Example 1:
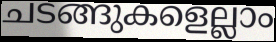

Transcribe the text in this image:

ചടങ്ങുകളെല്ലാം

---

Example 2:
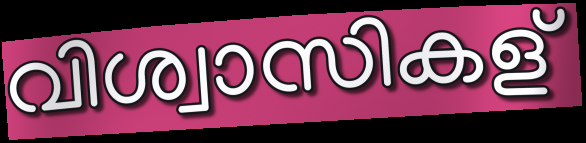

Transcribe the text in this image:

വിശ്വാസികള്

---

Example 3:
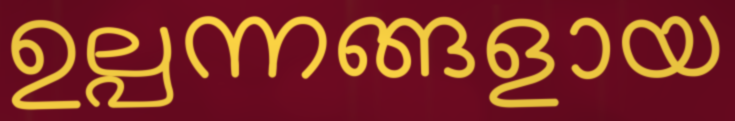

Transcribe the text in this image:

ഉല്പന്നങ്ങളായ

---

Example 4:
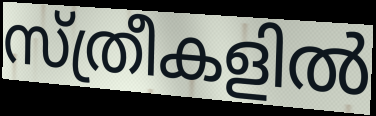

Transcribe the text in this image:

സ്ത്രീകളിൽ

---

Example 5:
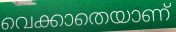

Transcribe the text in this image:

വെക്കാതെയാണ്